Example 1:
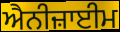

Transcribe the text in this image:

ਐਨੀਜ਼ਾਈਮ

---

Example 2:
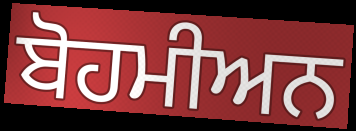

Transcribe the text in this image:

ਬੋਹਮੀਅਨ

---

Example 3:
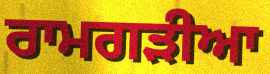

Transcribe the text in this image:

ਰਾਮਗੜੀਆ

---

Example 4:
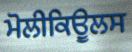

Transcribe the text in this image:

ਮੋਲੀਕਿਊਲਸ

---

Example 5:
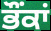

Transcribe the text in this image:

ਭੌਂਕਾਂ